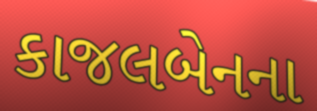
કાજલબેનના